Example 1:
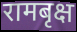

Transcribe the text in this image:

रामबृक्ष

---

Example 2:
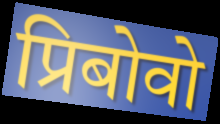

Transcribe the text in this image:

प्रिबोवो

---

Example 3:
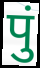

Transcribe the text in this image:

पुं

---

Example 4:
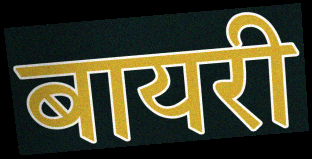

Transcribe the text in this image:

बायरी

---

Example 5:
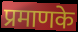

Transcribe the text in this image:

प्रमाणके